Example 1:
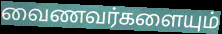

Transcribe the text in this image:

வைணவர்களையும்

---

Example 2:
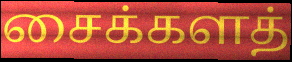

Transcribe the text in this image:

சைக்களத்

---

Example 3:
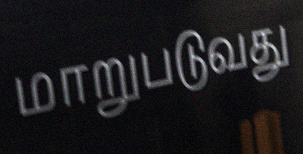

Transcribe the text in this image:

மாறுபடுவது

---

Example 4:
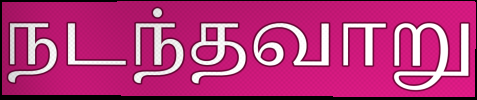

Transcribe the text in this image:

நடந்தவாறு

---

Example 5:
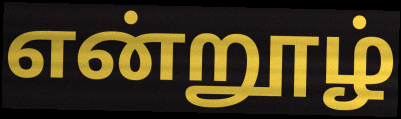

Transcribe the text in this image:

என்றூழ்